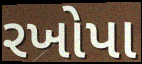
રખોપા